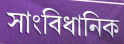
সাংবিধানিক